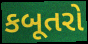
કબૂતરો